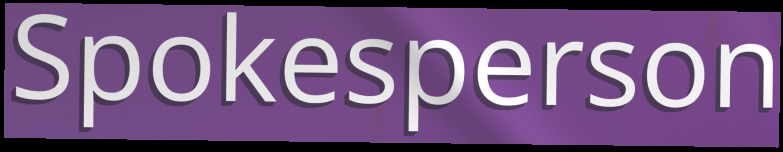
Spokesperson